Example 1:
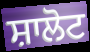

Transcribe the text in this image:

ਸ਼ਾਲੋਟ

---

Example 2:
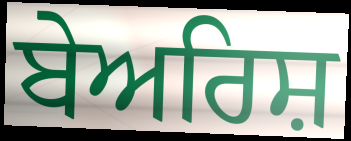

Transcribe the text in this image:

ਬੇਅਰਿਸ਼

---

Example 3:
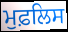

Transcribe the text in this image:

ਮੁਫ਼ਲਿਸ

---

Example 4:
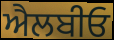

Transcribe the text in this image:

ਐਲਬੀਓ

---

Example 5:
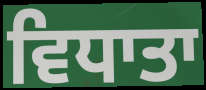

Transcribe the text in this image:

ਵਿਧਾਤਾ